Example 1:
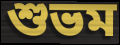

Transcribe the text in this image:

শুভম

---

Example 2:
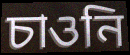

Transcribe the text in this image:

চাওনি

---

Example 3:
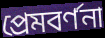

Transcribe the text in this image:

প্রেমবর্ণনা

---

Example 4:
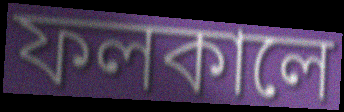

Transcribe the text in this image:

ফলকালে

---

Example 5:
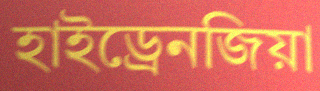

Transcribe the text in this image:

হাইড্রেনজিয়া